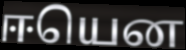
ஈயென